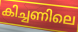
കിച്ചണിലെ